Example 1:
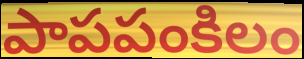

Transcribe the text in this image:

పాపపంకిలం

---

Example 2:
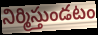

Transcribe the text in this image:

నిర్మిస్తుండటం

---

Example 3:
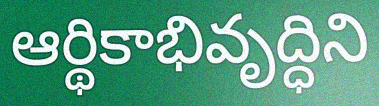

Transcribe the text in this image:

ఆర్థికాభివృద్ధిని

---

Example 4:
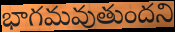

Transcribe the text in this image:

భాగమవుతుందని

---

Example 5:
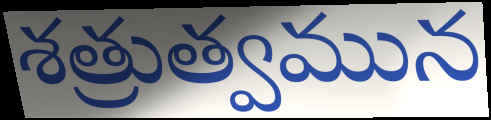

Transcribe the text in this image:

శత్రుత్వమున